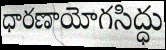
ధారణాయోగసిద్ధు